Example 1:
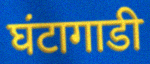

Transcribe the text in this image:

घंटागाडी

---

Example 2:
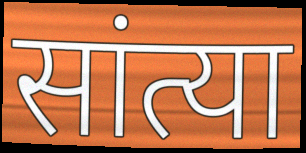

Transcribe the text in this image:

सांत्या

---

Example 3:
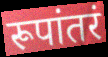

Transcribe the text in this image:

रूपांतरं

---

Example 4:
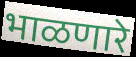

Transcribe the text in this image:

भाळणारे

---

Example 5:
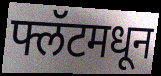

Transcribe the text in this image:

फ्लॅटमधून